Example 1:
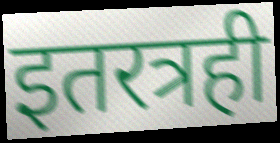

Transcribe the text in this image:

इतरत्रही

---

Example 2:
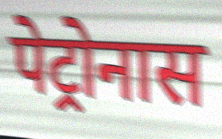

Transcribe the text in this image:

पेट्रोनास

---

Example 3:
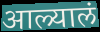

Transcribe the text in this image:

आल्यालं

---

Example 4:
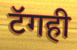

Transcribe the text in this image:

टॅगही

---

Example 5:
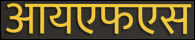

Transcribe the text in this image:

आयएफएस